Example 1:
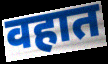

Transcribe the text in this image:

वहात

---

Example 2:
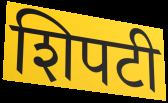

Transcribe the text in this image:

शिपटी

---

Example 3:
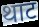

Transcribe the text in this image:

थाट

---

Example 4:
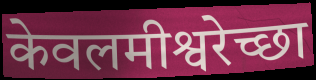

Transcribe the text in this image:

केवलमीश्वरेच्छा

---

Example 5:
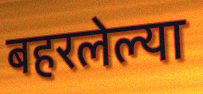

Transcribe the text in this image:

बहरलेल्या